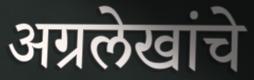
अग्रलेखांचे